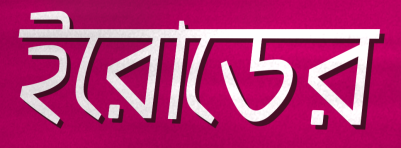
ইরোডের